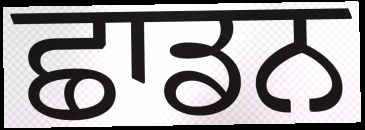
ਛਾਡਨ